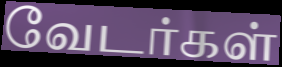
வேடர்கள்